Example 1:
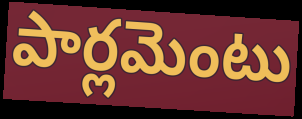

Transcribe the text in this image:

పార్లమెంటు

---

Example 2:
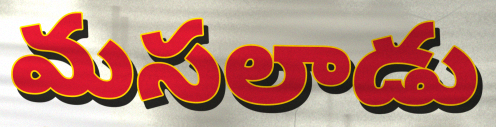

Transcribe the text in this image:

మసలాడు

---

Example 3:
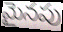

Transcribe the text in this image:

మైనపు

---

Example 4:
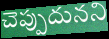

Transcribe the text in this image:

చెప్పుదునని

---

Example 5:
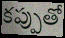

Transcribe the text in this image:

కప్పుతో